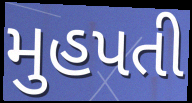
મુહપતી